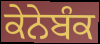
ਕੇਨੇਬੰਕ